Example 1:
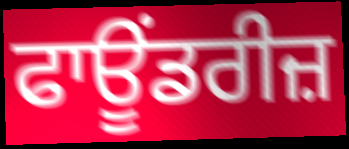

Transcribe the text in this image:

ਫਾਊਂਡਰੀਜ਼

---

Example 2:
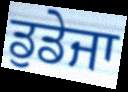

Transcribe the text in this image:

ਡੁਡੇਜਾ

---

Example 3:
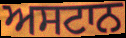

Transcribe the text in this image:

ਅਸਟਾਨ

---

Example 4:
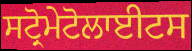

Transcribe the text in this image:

ਸਟ੍ਰੋਮੇਟੋਲਾਈਟਸ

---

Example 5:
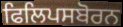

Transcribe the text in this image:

ਫਿਲਿਪਸਬੋਰਨ